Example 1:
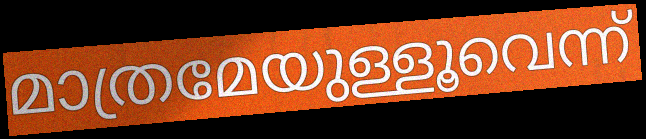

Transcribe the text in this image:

മാത്രമേയുള്ളൂവെന്ന്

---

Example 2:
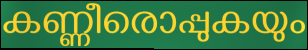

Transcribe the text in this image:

കണ്ണീരൊപ്പുകയും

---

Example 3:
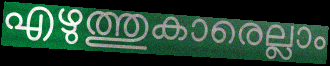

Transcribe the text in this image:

എഴുത്തുകാരെല്ലാം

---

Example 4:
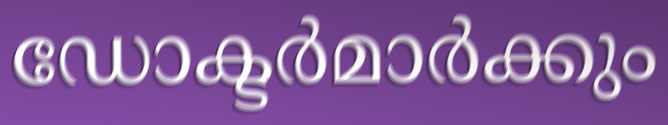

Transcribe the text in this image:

ഡോക്ടർമാർക്കും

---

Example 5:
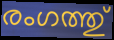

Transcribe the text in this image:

രംഗത്തു്